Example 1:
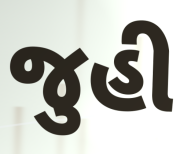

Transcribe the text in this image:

જુહી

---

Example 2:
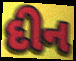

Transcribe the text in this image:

દીન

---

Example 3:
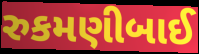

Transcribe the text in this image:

રુકમણીબાઈ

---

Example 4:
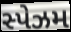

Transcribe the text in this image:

સ્પેઝમ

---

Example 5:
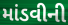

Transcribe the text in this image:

માંડવીની